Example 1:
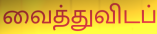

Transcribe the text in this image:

வைத்துவிடப்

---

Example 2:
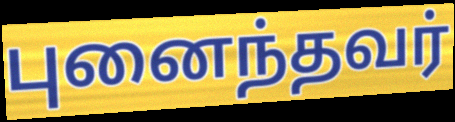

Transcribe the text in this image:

புனைந்தவர்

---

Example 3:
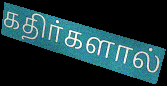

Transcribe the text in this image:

கதிர்களால்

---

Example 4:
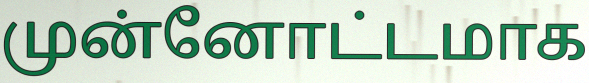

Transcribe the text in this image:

முன்னோட்டமாக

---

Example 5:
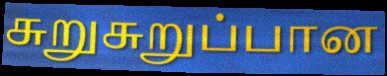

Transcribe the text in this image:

சுறுசுறுப்பான